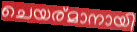
ചെയര്മാനായി